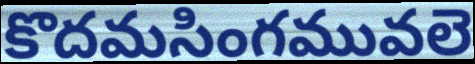
కొదమసింగమువలె